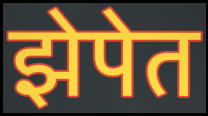
झेपेत